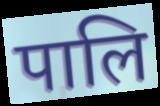
पालि